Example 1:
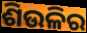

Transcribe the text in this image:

ଶିଉଳିର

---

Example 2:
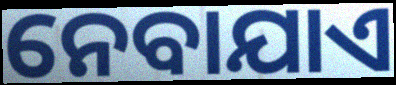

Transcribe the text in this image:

ନେବାଯାଏ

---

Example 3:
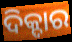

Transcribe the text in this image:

ଦିକ୍ଦାର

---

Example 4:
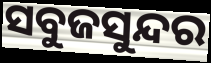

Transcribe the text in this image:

ସବୁଜସୁନ୍ଦର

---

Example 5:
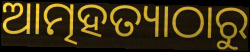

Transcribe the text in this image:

ଆତ୍ମହତ୍ୟାଠାରୁ